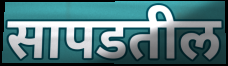
सापडतील